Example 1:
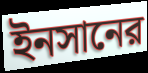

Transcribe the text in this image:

ইনসানের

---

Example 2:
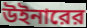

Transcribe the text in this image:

উইনারের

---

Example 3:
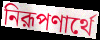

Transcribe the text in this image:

নিরূপণার্থে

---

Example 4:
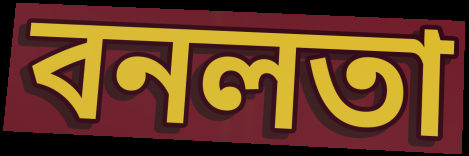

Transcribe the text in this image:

বনলতা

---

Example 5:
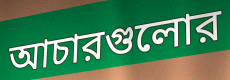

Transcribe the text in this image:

আচারগুলোর